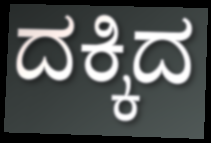
ದಕ್ಕಿದ